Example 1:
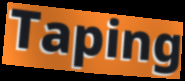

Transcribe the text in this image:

Taping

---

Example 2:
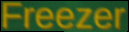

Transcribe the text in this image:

Freezer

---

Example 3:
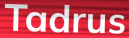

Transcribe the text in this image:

Tadrus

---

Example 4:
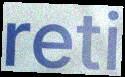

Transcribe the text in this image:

reti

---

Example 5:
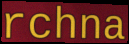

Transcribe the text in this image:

rchna